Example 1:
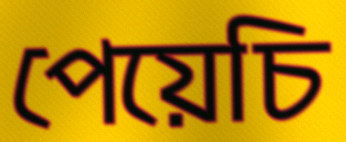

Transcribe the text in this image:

পেয়েচি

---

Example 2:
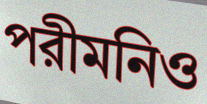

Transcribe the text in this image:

পরীমনিও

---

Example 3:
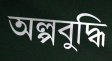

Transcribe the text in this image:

অল্পবুদ্ধি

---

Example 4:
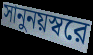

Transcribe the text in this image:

সানুনয়স্বরে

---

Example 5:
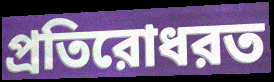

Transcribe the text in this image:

প্রতিরোধরত